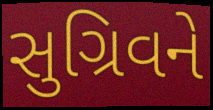
સુગ્રિવને